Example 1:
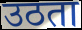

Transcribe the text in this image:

उठता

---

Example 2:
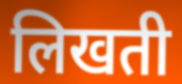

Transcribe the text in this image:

लिखती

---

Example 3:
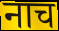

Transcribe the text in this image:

नाच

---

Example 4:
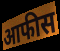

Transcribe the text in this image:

आफीस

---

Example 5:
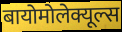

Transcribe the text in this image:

बायोमोलेक्यूल्स